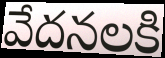
వేదనలకి